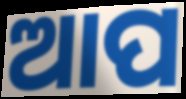
ଆପ